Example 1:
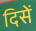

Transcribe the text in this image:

दिसें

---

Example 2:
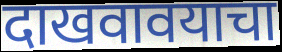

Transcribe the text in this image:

दाखवावयाचा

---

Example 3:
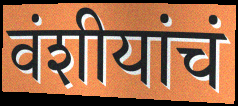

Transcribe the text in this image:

वंशीयांचं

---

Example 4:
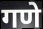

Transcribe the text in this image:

गणे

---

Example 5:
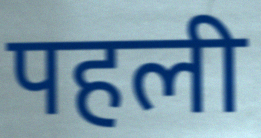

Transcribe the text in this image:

पहली